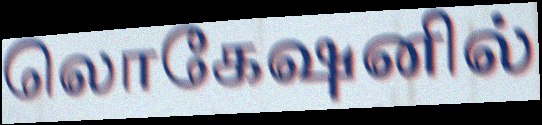
லொகேஷனில்